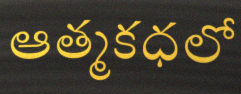
ఆత్మకధలో